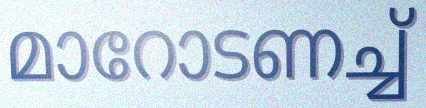
മാറോടണച്ച്